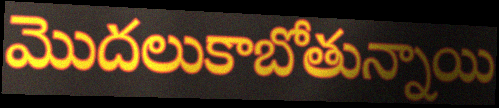
మొదలుకాబోతున్నాయి